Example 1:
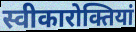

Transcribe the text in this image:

स्वीकारोक्तियां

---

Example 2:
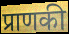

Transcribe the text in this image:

प्राणकी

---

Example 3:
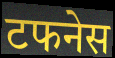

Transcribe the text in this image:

टफनेस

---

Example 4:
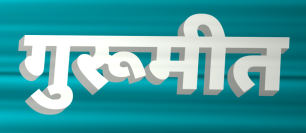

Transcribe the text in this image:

गुरूमीत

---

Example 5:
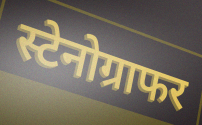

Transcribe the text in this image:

स्टेनोग्राफर